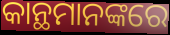
କାନ୍ଥମାନଙ୍କରେ